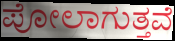
ಪೋಲಾಗುತ್ತವೆ